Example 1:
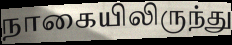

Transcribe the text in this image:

நாகையிலிருந்து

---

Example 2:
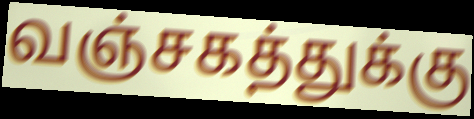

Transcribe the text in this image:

வஞ்சகத்துக்கு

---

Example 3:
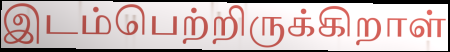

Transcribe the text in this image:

இடம்பெற்றிருக்கிறாள்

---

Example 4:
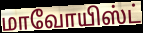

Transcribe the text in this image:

மாவோயிஸ்ட்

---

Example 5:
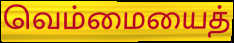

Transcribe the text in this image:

வெம்மையைத்